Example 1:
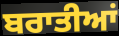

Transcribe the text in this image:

ਬਰਾਤੀਆਂ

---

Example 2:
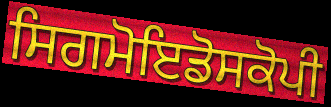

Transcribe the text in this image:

ਸਿਗਮੋਇਡੋਸਕੋਪੀ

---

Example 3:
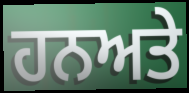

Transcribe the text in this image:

ਹਨਅਤੇ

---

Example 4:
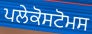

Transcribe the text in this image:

ਪਲੇਕੋਸਟੋਮਸ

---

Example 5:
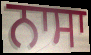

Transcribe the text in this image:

ਨਾਸਾ